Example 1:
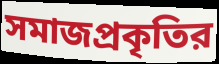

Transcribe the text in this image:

সমাজপ্রকৃতির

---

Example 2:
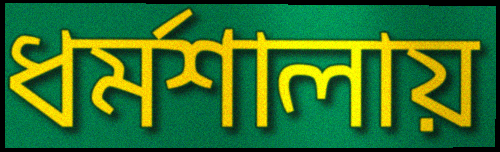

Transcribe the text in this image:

ধর্মশালায়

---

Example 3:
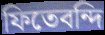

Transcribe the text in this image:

ফিতেবন্দি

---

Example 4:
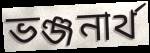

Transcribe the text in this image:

ভঞ্জনার্থ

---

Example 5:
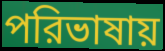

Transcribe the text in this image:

পরিভাষায়